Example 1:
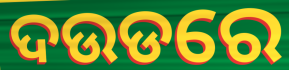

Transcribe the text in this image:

ଦଉଡରେ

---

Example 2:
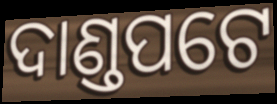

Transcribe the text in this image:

ଦାଣ୍ଡପଟେ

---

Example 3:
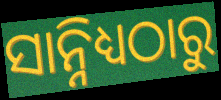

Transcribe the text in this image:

ସାନ୍ନିଧ୍ୟଠାରୁ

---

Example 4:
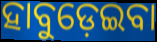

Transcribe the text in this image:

ହାବୁଡ଼େଇବା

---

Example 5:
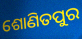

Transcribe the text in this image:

ଶୋଣିତପୁର